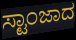
ಸ್ಟಾಂಜಾದ